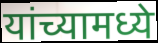
यांच्यामध्ये